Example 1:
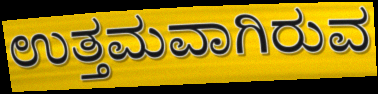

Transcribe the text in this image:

ಉತ್ತಮವಾಗಿರುವ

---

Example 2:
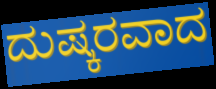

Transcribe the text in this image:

ದುಷ್ಕರವಾದ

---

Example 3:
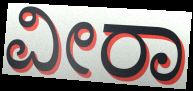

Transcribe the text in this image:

ವೀರಾ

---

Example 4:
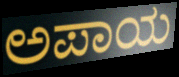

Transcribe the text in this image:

ಅಪಾಯ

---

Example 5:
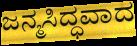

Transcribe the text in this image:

ಜನ್ಮಸಿದ್ಧವಾದ